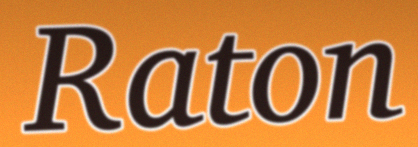
Raton